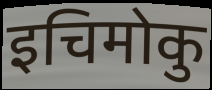
इचिमोकु